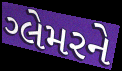
ગ્લેમરને